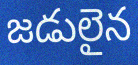
జడులైన